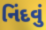
નિંદવું